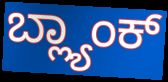
ಬ್ಲ್ಯಾಂಕ್